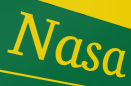
Nasa